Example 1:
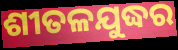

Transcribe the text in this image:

ଶୀତଳଯୁଦ୍ଧର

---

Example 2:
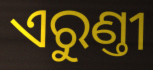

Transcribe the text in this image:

ଏରୁଣ୍ତୀ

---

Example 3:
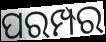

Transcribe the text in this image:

ପରମ୍ପର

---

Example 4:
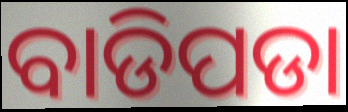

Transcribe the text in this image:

ବାଡିପଡା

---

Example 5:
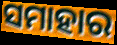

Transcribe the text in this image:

ସମାହାର